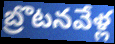
బ్రొటనవేళ్ల